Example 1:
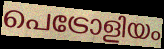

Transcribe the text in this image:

പെട്രോളിയം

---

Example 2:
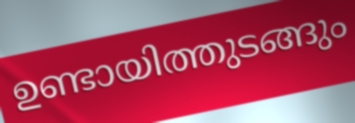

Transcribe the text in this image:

ഉണ്ടായിത്തുടങ്ങും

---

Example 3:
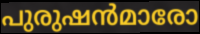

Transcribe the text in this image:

പുരുഷൻമാരോ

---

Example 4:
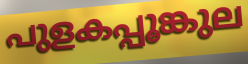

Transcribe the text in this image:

പുളകപ്പൂങ്കുല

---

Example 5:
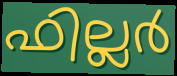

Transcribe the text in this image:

ഫില്ലർ